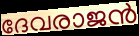
ദേവരാജൻ